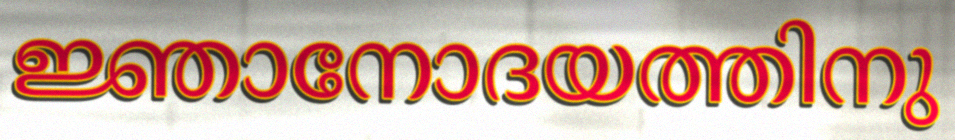
ജ്ഞാനോദയത്തിനു